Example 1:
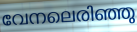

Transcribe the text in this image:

വേനലെരിഞ്ഞു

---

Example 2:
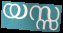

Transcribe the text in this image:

യസ്സ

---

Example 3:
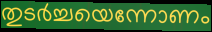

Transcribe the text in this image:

തുടർച്ചയെന്നോണം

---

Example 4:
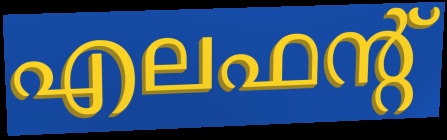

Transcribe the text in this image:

എലഫന്റ്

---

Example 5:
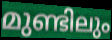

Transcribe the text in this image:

മുണ്ടിലും